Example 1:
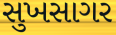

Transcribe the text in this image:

સુખસાગર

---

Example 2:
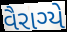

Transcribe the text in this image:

વૈરાગ્યે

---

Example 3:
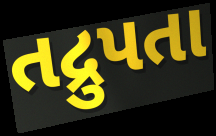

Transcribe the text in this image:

તદ્રુપતા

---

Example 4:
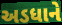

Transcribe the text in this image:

અડધાને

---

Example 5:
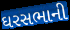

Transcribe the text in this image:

ઘરસભાની